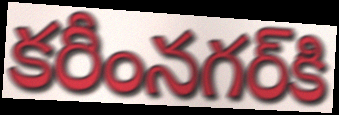
కరీంనగర్‌కి